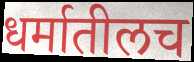
धर्मातीलच